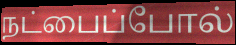
நட்பைப்போல்